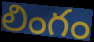
లింగం